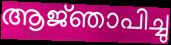
ആജ്‌ഞാപിച്ചു